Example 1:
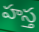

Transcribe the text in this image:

హస్త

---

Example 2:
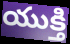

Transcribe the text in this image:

యుక్తి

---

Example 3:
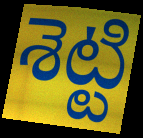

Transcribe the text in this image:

శెట్టి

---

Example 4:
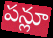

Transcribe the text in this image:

పన్లూ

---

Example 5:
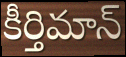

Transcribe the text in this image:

కీర్తిమాన్